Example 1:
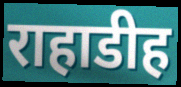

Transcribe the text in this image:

राहाडीह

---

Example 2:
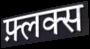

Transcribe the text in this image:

फ़्लक्स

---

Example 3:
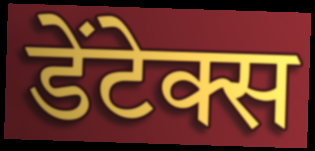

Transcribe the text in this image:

डेंटेक्स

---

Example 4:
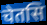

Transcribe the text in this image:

चेतसि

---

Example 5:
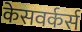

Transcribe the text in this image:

केसवर्कर्स